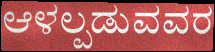
ಆಳಲ್ಪಡುವವರ